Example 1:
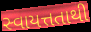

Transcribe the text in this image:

સ્વાયત્તતાથી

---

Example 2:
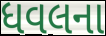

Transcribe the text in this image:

ધવલના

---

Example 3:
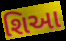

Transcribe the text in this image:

શિઆ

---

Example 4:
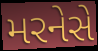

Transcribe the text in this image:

મરનેસે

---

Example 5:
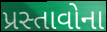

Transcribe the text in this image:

પ્રસ્તાવોના